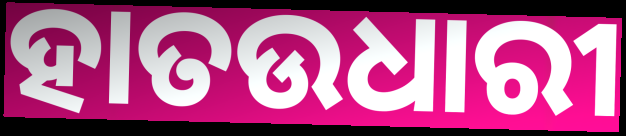
ହାତଉଧାରୀ